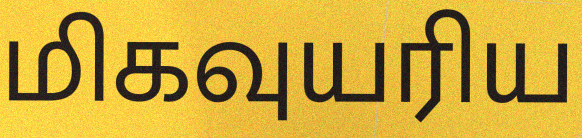
மிகவுயரிய